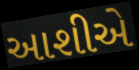
આશીએ